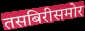
तसबिरीसमोर